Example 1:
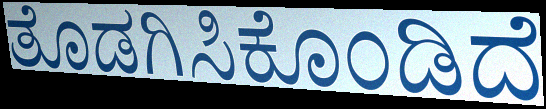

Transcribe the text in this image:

ತೊಡಗಿಸಿಕೊಂಡಿದೆ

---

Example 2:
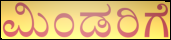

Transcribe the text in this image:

ಮಿಂಡರಿಗೆ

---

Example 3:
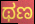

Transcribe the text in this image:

ಥಣ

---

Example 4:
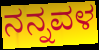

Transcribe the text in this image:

ನನ್ನವಳ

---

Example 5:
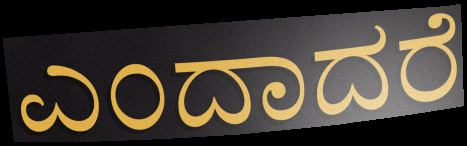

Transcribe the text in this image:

ಎಂದಾದರೆ